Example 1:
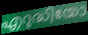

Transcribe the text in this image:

എറുദ്ധിയോ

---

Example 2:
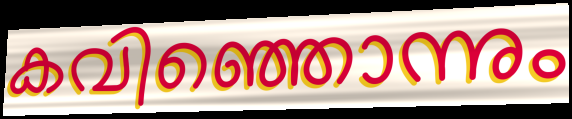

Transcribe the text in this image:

കവിഞ്ഞൊന്നും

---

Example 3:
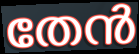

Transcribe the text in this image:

തേൻ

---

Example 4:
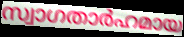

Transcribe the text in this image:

സ്വാഗതാർഹമായ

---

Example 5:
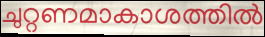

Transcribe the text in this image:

ചുറ്റണമാകാശത്തിൽ